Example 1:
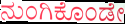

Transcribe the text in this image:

ನುಂಗಿಕೊಂಡೇ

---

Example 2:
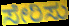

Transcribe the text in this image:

ಸೇರಿಸು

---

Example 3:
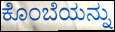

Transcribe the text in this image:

ಕೊಂಬೆಯನ್ನು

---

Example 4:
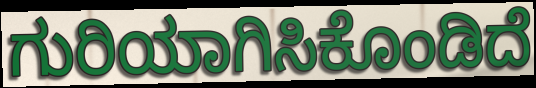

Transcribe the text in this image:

ಗುರಿಯಾಗಿಸಿಕೊಂಡಿದೆ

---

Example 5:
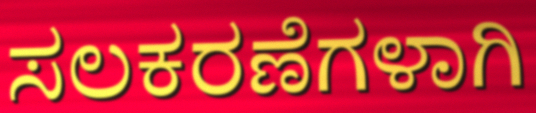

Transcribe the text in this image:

ಸಲಕರಣೆಗಳಾಗಿ